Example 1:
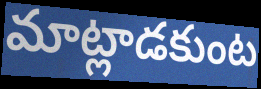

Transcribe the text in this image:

మాట్లాడకుంట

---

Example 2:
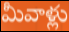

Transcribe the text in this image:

మీవాళ్లు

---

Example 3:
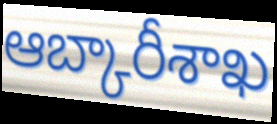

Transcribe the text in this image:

ఆబ్కారీశాఖ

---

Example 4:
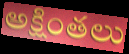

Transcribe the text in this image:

అక్షింతలు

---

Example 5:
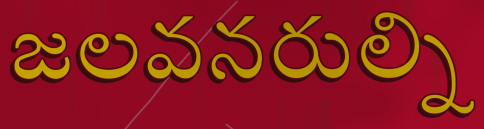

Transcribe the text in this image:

జలవనరుల్ని